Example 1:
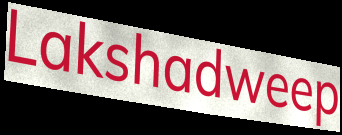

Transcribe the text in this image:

Lakshadweep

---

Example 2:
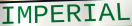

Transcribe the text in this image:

IMPERIAL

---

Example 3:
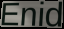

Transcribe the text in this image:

Enid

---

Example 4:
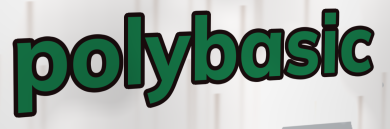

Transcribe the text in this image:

polybasic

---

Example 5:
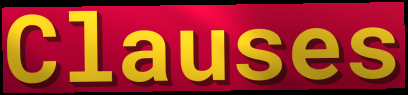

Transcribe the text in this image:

Clauses